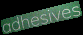
adhesives